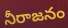
నీరాజనం